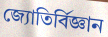
জ্যোতিৰ্বিজ্ঞান